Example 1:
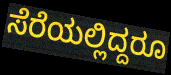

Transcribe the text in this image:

ಸೆರೆಯಲ್ಲಿದ್ದರೂ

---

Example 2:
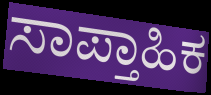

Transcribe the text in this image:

ಸಾಪ್ತಾಹಿಕ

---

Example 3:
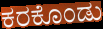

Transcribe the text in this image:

ಕರಕೊಂಡು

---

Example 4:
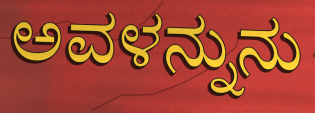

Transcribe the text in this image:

ಅವಳನ್ನುನು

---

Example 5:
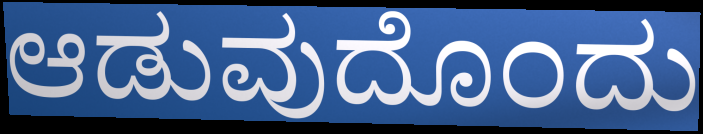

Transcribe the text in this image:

ಆಡುವುದೊಂದು